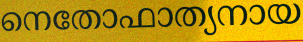
നെതോഫാത്യനായ